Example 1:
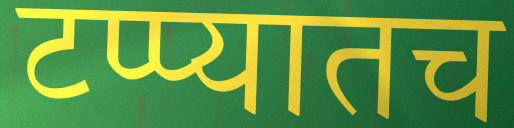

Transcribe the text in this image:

टप्प्यातच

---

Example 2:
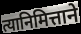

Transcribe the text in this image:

त्यानिमित्ताने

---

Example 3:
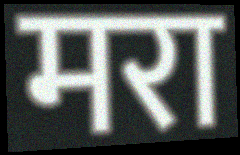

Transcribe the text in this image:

मरा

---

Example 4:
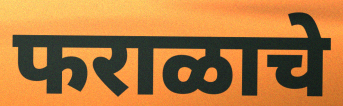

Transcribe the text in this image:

फराळाचे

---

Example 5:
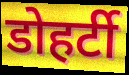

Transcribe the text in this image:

डोहर्टी